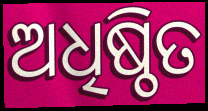
ଅଧିଷ୍ଠିତ